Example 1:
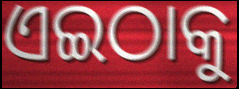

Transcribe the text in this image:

ଏଇଠାକୁ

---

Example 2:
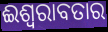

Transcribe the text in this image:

ଈଶ୍ୱରାବତାର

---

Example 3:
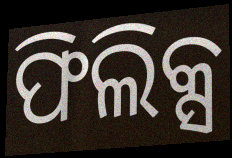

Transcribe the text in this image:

ଫିଲିକ୍ସ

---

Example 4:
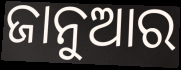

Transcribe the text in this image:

ଜାନୁଆର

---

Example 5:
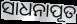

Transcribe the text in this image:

ସାଧନାପୂତ